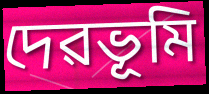
দেৱভূমি